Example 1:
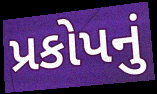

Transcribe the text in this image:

પ્રકોપનું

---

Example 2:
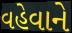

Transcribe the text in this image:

વહેવાને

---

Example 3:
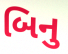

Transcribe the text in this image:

બિનુ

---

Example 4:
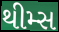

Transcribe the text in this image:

થીમ્સ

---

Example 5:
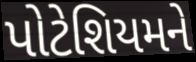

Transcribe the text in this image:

પોટેશિયમને